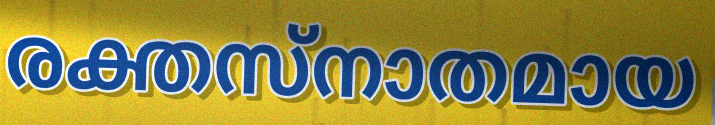
രക്തസ്നാതമായ